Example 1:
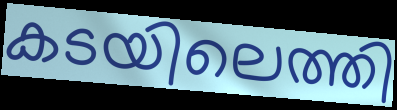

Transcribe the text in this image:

കടയിലെത്തി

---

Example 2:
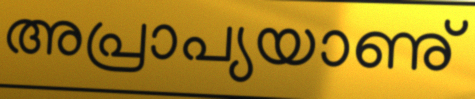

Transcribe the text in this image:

അപ്രാപ്യയാണു്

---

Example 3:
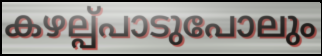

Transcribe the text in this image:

കഴല്പ്പാടുപോലും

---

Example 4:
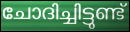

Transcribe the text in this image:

ചോദിച്ചിട്ടുണ്ട്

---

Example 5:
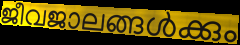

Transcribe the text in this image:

ജീവജാലങ്ങൾക്കും